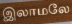
இலாமலே